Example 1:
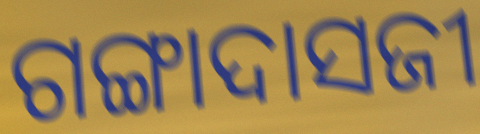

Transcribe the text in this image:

ଗଙ୍ଗାଦାସଜୀ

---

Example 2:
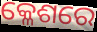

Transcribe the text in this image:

କ୍ଳେଶରେ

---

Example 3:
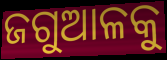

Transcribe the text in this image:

ଜଗୁଆଳକୁ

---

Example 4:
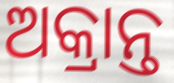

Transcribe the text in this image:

ଅକ୍ରାନ୍ତ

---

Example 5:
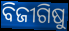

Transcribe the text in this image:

ବିଜୀଗିଷୁ